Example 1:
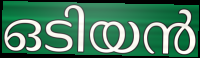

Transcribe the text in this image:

ഒടിയൻ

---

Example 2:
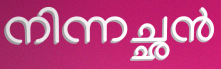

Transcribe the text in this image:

നിന്നച്ഛൻ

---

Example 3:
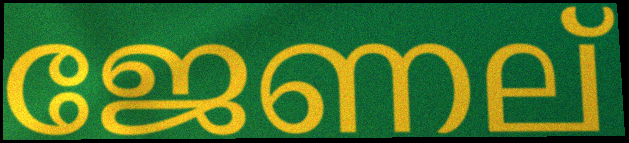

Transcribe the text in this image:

ജേണല്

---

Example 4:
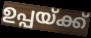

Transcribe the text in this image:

ഉപ്പയ്ക്ക്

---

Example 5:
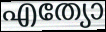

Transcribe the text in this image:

എത്യോ